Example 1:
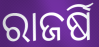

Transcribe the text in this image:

ରାଜର୍ଷି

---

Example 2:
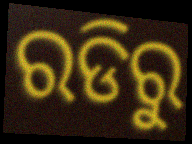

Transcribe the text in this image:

ରଡିରୁ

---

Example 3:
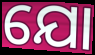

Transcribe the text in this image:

ଯୋ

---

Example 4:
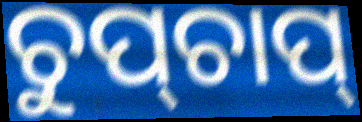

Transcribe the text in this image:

ଚୁପ୍‌ଚାପ୍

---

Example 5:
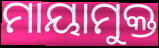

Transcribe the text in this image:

ମାୟାମୁକ୍ତ